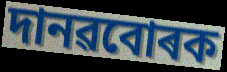
দানৱবোৰক